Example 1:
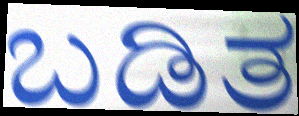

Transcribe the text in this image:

ಬಡಿತ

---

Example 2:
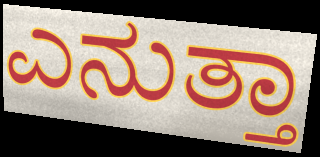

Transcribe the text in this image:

ಎನುತ್ತಾ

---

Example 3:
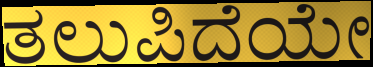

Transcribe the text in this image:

ತಲುಪಿದೆಯೇ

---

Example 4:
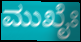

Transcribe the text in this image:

ಮುಖೈಃ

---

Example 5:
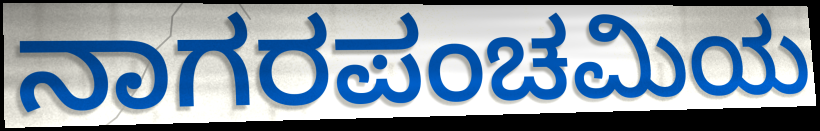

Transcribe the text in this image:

ನಾಗರಪಂಚಮಿಯ